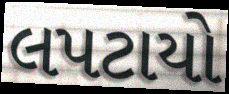
લપટાયો